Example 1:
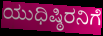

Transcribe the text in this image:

ಯುಧಿಷ್ಠಿರನಿಗೆ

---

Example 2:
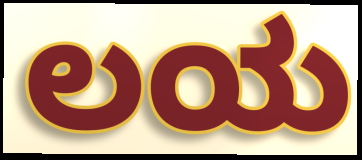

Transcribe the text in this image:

ಲಯ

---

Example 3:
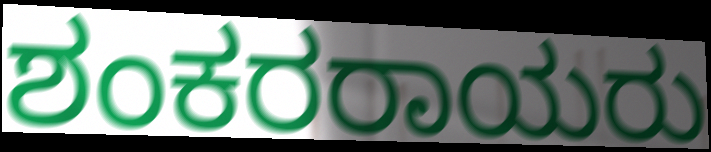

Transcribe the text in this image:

ಶಂಕರರಾಯರು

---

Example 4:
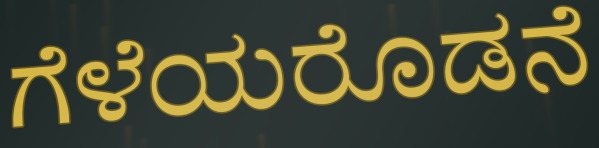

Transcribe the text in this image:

ಗೆಳೆಯರೊಡನೆ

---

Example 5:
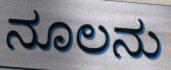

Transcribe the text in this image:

ನೂಲನು